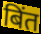
बिंत